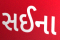
સઈના